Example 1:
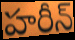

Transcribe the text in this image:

హరీన్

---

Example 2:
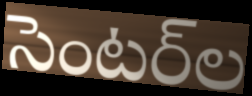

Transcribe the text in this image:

సెంటర్‌ల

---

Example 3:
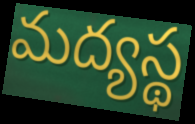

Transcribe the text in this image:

మద్యస్థ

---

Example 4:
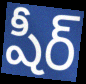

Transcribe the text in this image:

షీర్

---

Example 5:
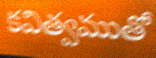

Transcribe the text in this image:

కవిత్వముతో